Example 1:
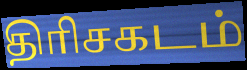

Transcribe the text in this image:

திரிசகடம்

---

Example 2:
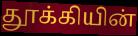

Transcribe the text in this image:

தூக்கியின்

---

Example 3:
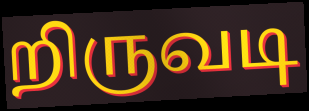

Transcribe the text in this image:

றிருவடி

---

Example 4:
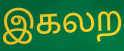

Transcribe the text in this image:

இகலற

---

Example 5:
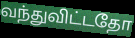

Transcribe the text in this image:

வந்துவிட்டதோ